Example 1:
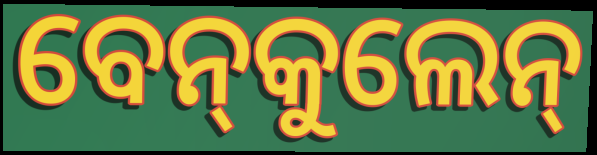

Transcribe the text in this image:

ବେନ୍‍କୁଲେନ୍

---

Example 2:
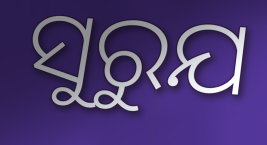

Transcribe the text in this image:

ସୁରୁଯ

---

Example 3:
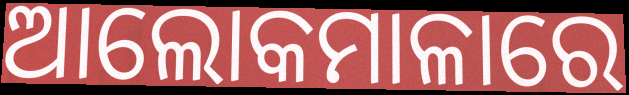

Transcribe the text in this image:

ଆଲୋକମାଳାରେ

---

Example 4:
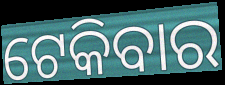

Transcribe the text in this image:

ଟେକିବାର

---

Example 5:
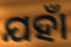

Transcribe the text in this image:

ଯହାଁ